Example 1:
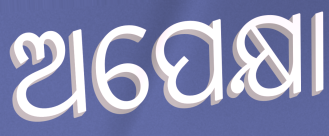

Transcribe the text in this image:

ଅପେକ୍ଷା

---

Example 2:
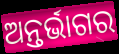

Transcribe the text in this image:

ଅନ୍ତର୍ଭାଗର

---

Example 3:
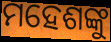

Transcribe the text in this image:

ମହେଶଙ୍କୁ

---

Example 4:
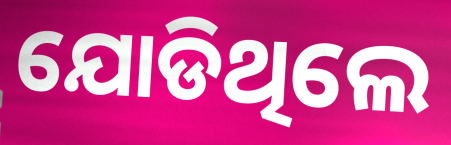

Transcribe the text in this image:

ଯୋଡିଥିଲେ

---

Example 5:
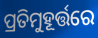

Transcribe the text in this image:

ପ୍ରତିମୁହୂର୍ତ୍ତରେ